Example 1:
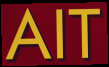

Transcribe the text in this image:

AIT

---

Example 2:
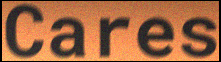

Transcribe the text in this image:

Cares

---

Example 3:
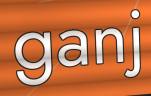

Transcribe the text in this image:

ganj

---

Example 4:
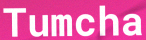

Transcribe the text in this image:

Tumcha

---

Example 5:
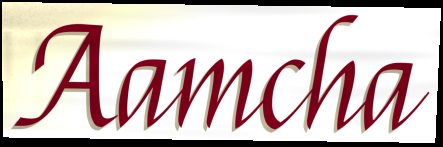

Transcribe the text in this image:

Aamcha